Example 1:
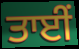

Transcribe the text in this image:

ਤਾਈਂ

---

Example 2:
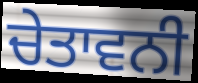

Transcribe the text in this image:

ਚੇਤਾਵਨੀ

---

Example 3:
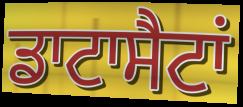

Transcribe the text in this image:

ਡਾਟਾਸੈਟਾਂ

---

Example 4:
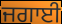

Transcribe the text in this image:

ਜਗਾਈ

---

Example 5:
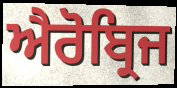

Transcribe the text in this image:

ਐਰੋਬ੍ਰਿਜ